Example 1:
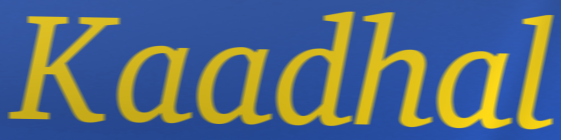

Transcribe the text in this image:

Kaadhal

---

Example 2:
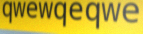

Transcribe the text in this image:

qwewqeqwe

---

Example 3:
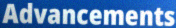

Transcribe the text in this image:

Advancements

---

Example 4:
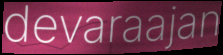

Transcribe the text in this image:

devaraajan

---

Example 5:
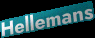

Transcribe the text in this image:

Hellemans